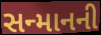
સન્માનની